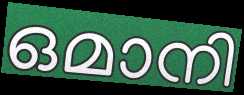
ഒമാനി